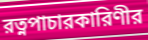
রত্নপাচারকারিণীর